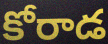
కోరాడ